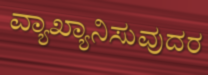
ವ್ಯಾಖ್ಯಾನಿಸುವುದರ